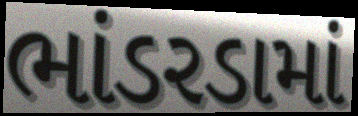
ભાંડરડામાં